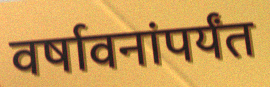
वर्षावनांपर्यंत